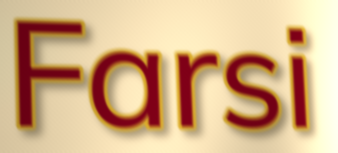
Farsi